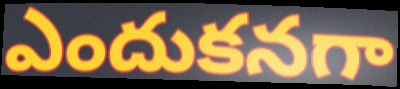
ఎందుకనగా